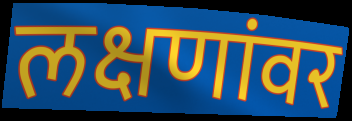
लक्षणांवर